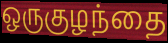
ஒருகுழந்தை